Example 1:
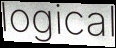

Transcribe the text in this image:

logical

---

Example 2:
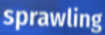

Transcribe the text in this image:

sprawling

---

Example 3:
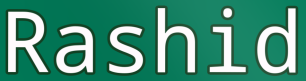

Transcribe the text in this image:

Rashid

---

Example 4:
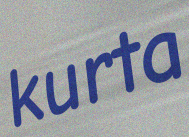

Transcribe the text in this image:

kurta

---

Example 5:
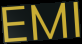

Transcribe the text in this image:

EMI